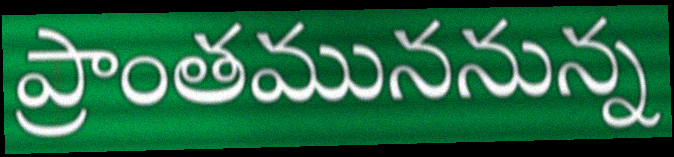
ప్రాంతముననున్న